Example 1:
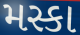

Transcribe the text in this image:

મસ્કા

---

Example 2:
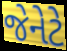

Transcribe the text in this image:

જેનેટે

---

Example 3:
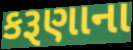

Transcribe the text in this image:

કરૂણાના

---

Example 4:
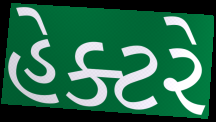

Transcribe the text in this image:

હેક્ટરે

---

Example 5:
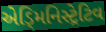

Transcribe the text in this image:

એડ્મિનિસ્ટ્રેટિવ